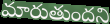
మారుతుందని